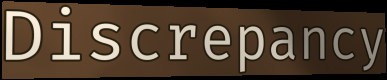
Discrepancy